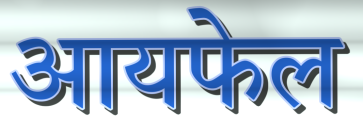
आयफेल